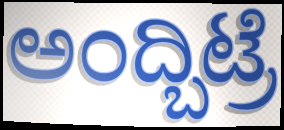
ಅಂದ್ಬಿಟ್ರೆ